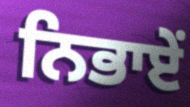
ਨਿਭਾਏਂ